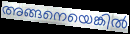
അങ്ങനെയെങ്കിൽ